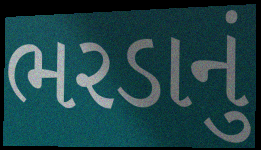
ભરડાનું